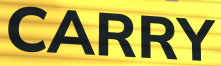
CARRY